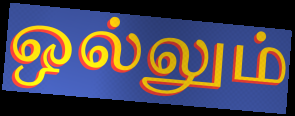
ஒல்லும்